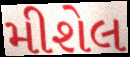
મીશેલ